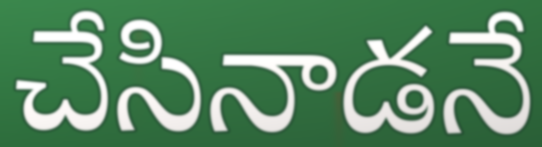
చేసినాడనే